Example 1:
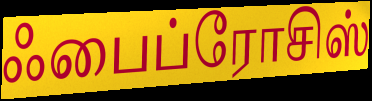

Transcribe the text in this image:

ஃபைப்ரோசிஸ்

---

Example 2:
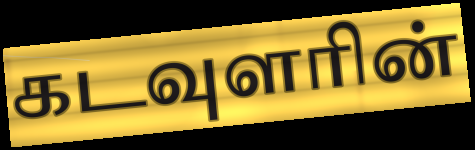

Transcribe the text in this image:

கடவுளரின்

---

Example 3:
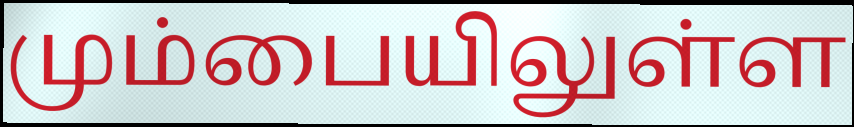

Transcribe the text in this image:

மும்பையிலுள்ள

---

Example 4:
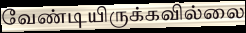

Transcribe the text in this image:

வேண்டியிருக்கவில்லை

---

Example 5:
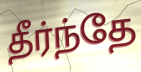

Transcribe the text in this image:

தீர்ந்தே